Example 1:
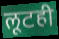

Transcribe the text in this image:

लूटही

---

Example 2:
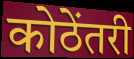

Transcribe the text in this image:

कोठेंतरी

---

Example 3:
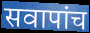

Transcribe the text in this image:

सवापांच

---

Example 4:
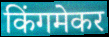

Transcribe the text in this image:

किंगमेकर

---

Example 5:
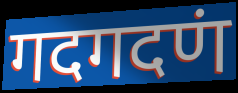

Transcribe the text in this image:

गदगदणं